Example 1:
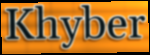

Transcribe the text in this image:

Khyber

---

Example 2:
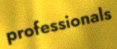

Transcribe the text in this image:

professionals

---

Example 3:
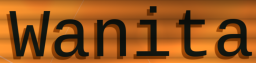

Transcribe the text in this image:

Wanita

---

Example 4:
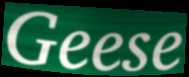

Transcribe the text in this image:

Geese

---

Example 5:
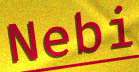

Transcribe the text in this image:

Nebi